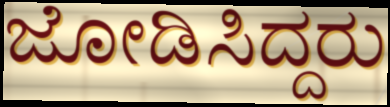
ಜೋಡಿಸಿದ್ದರು